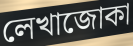
লেখাজোকা